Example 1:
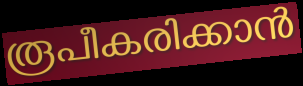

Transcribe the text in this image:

രൂപീകരിക്കാൻ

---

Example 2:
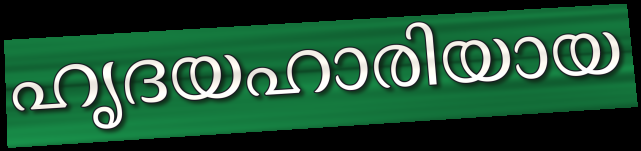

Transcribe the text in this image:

ഹൃദയഹാരിയായ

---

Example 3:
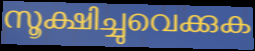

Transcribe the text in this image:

സൂക്ഷിച്ചുവെക്കുക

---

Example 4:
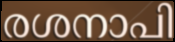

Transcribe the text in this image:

രശനാപി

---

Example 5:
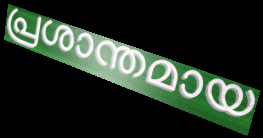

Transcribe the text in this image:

പ്രശാന്തമായ